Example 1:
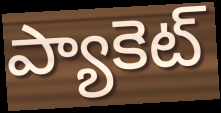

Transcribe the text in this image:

ప్యాకెట్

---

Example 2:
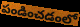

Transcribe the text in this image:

పండించడంలో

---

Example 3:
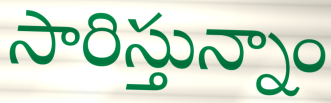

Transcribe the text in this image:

సారిస్తున్నాం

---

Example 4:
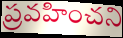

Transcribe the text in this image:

ప్రవహించని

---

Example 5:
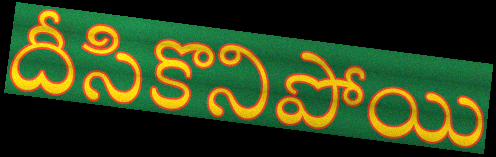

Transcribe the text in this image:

దీసికొనిపోయి